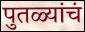
पुतळ्यांचं